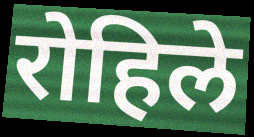
रोहिले